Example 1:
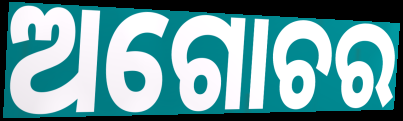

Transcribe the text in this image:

ଅଗୋଚର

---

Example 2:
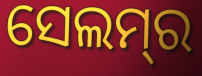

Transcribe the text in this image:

ସେଲମ୍‌ର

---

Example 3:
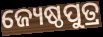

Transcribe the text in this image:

ଜ୍ୟେଷ୍ଠପୁତ୍ର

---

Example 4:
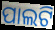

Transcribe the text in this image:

ପାଲଟି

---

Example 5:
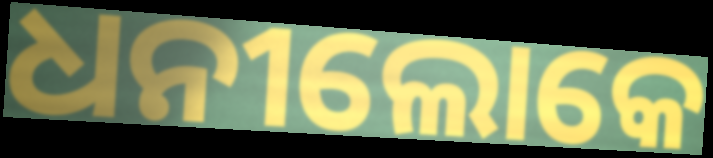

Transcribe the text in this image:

ଧନୀଲୋକେ